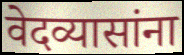
वेदव्यासांना